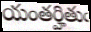
యంతర్హితుఁ